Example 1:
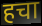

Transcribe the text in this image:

हचा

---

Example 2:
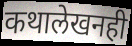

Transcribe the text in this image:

कथालेखनही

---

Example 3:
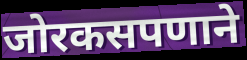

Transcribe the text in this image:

जोरकसपणाने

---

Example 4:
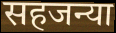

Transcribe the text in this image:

सहजन्या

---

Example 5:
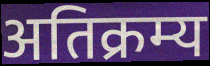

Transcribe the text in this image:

अतिक्रम्य